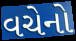
વચેનો